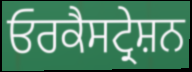
ਓਰਕੈਸਟ੍ਰੇਸ਼ਨ